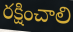
రక్షించాలి